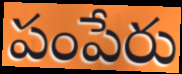
పంపేరు